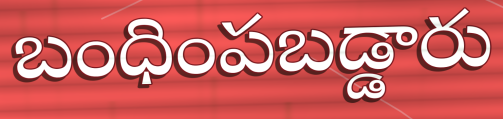
బంధింపబడ్డారు